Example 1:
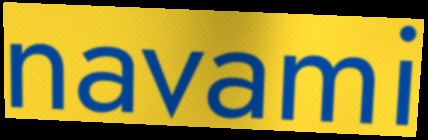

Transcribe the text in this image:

navami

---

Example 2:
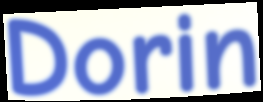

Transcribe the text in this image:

Dorin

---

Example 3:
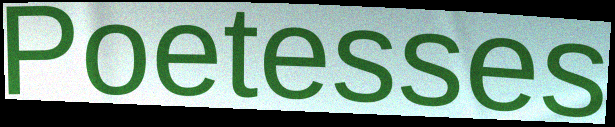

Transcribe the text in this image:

Poetesses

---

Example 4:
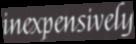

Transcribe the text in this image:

inexpensively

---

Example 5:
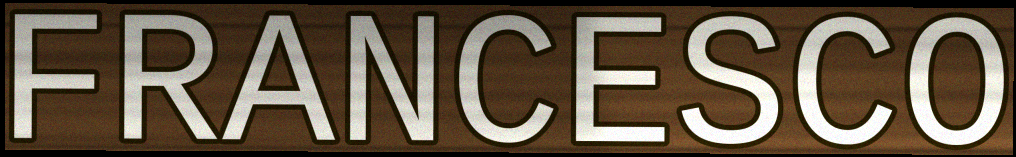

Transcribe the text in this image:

FRANCESCO